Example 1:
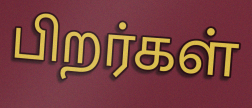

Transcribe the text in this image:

பிறர்கள்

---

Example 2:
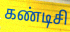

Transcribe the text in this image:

கண்டிசி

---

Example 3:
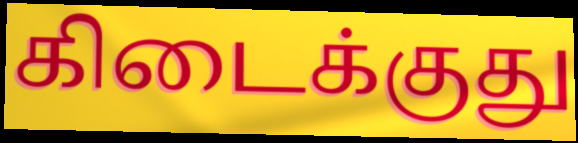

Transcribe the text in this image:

கிடைக்குது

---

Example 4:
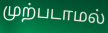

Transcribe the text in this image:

முற்படாமல்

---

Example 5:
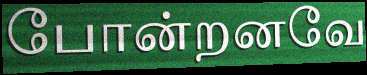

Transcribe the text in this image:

போன்றனவே